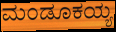
ಮಂಡೂಕಯ್ಯ